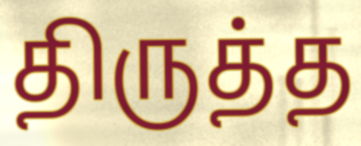
திருத்த